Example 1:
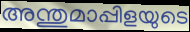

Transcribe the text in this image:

അന്തുമാപ്പിളയുടെ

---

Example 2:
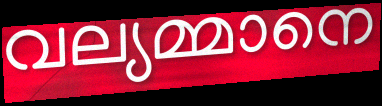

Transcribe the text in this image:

വല്യമ്മാനെ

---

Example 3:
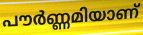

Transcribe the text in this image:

പൗർണ്ണമിയാണ്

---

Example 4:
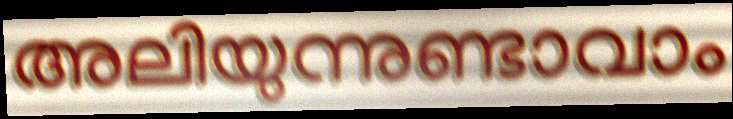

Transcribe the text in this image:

അലിയുന്നുണ്ടാവാം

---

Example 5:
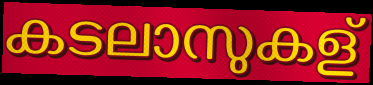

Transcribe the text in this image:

കടലാസുകള്